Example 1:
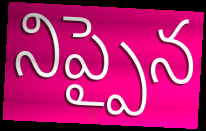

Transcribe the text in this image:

నిప్పైన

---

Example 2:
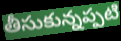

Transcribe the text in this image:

తీసుకున్నప్పటి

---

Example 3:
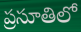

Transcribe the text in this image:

ప్రసూతిలో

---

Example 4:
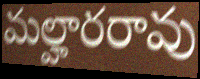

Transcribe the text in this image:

మల్హారరావు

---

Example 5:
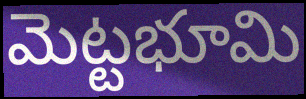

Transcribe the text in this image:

మెట్టభూమి